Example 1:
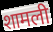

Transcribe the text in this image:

शामली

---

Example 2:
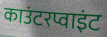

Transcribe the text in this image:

काउंटरप्वाइंट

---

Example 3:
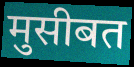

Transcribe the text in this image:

मुसीबत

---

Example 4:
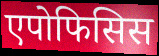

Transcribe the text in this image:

एपोफिसिस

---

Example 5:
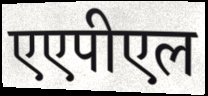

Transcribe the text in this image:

एएपीएल